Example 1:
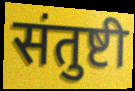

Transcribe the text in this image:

संतुष्टी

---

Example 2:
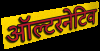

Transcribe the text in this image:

ऑल्टरनेटिव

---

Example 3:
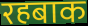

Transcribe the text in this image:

रहबाक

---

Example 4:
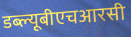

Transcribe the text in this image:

डब्ल्यूबीएचआरसी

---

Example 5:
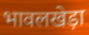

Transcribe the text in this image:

भावलखेड़ा